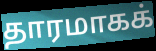
தாரமாகக்